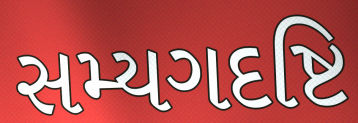
સમ્યગદષ્ટિ